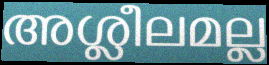
അശ്ലീലമല്ല